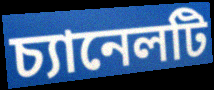
চ্যানেলটি